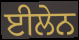
ਈਲੇਨ